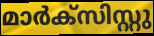
മാർക്സിസ്റ്റു